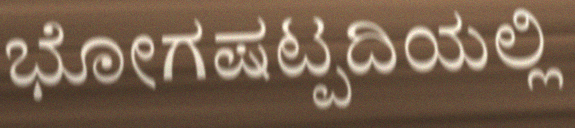
ಭೋಗಷಟ್ಪದಿಯಲ್ಲಿ